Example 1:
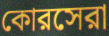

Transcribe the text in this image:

কোরসেরা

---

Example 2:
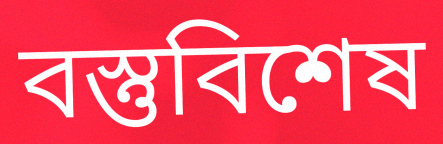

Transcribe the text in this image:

বস্তুবিশেষ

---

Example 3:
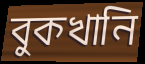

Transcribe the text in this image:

বুকখানি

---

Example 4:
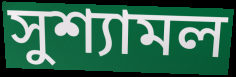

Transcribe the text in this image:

সুশ্যামল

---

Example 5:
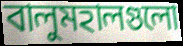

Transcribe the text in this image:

বালুমহালগুলো